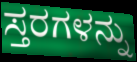
ಸ್ತರಗಳನ್ನು